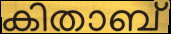
കിതാബ്